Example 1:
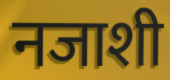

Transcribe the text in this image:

नजाशी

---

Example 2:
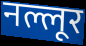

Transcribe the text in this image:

नल्लूर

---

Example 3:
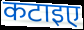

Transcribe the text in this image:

कटाइए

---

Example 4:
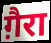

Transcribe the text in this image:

ग़ैरा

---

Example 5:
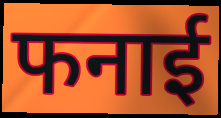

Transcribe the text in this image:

फनाई